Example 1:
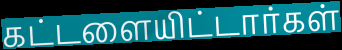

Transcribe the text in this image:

கட்டளையிட்டார்கள்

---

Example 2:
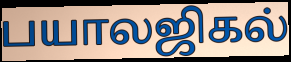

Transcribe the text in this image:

பயாலஜிகல்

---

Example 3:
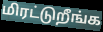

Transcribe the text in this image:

மிரட்டுறீங்க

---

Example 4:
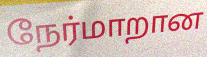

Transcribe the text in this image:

நேர்மாறான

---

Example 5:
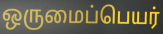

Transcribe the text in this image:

ஒருமைப்பெயர்